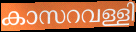
കാസറവള്ളി